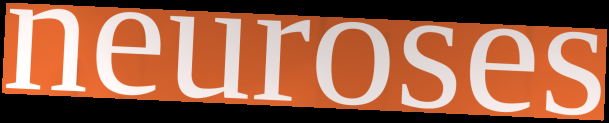
neuroses